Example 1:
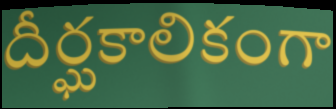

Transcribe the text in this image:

దీర్ఘకాలికంగా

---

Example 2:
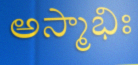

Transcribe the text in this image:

అస్మాభిః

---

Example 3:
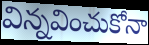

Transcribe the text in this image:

విన్నవించుకోనా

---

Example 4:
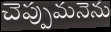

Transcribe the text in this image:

చెప్పుమనెను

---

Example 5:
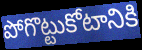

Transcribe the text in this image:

పోగొట్టుకోటానికి